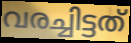
വരച്ചിട്ടത്